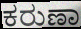
ಕರುಣಾ